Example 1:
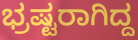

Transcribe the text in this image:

ಭ್ರಷ್ಟರಾಗಿದ್ದ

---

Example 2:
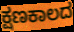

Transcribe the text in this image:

ಕ್ಷಣಕಾಲದ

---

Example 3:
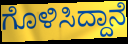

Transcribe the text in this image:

ಗೊಳಿಸಿದ್ದಾನೆ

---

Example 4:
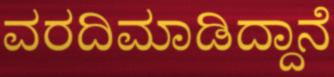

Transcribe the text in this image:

ವರದಿಮಾಡಿದ್ದಾನೆ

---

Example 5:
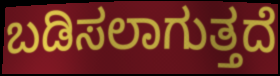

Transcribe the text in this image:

ಬಡಿಸಲಾಗುತ್ತದೆ